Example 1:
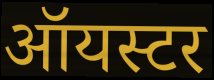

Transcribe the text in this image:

ऑयस्टर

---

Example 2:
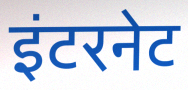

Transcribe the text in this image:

इंटरनेट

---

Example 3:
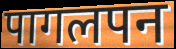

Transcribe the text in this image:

पागलपन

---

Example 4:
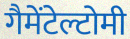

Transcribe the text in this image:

गैमेंटेल्टोमी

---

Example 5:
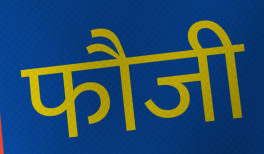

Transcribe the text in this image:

फौजी